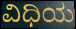
ವಿಧಿಯ